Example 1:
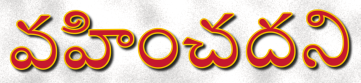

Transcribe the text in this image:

వహించదని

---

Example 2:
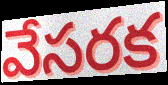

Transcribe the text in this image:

వేసరక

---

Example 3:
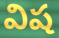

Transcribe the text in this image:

విష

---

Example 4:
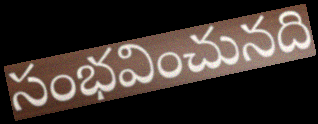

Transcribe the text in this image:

సంభవించునది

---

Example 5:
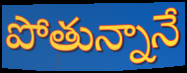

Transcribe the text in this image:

పోతున్నానే